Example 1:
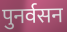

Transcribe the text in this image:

पुनर्वसन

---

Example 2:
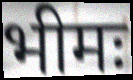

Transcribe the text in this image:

भीमः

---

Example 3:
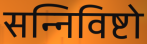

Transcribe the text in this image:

सन्निविष्टो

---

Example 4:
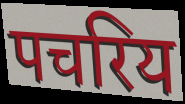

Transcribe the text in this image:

पचरिय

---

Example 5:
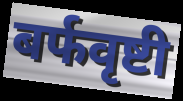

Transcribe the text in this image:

बर्फवृष्टी